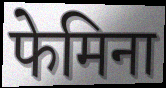
फेमिना